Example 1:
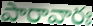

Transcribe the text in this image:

పారావారః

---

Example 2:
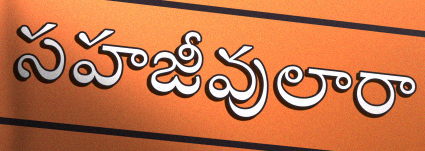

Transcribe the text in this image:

సహజీవులారా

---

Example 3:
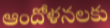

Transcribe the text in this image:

ఆందోళనలకు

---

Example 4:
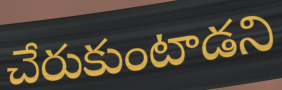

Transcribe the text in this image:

చేరుకుంటాడని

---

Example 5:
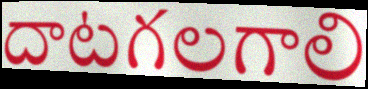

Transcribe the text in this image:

దాటగలగాలి